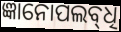
ଜ୍ଞାନୋପଲବ୍‌ଧି